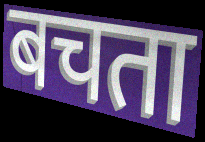
बचता